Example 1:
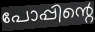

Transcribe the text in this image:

പോപ്പിന്റെ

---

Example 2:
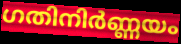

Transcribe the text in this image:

ഗതിനിർണ്ണയം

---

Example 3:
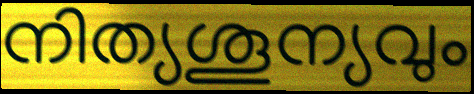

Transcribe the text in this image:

നിത്യശൂന്യവും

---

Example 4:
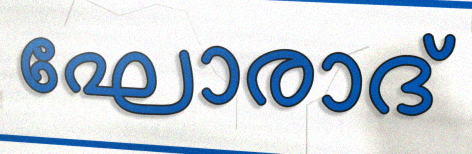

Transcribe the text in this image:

ഘോരാദ്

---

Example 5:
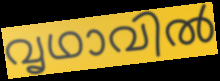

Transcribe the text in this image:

വൃഥാവിൽ